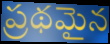
ప్రథమైన